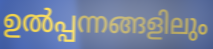
ഉൽപ്പന്നങ്ങളിലും